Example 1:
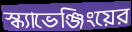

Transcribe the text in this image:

স্ক্যাভেঞ্জিংয়ের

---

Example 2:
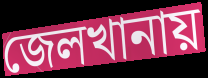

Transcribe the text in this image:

জেলখানায়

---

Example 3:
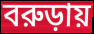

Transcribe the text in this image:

বরুড়ায়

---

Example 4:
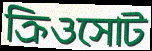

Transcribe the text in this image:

ক্রিওসোট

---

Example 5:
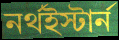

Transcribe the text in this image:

নর্থইস্টার্ন